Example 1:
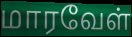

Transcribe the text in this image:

மாரவேள்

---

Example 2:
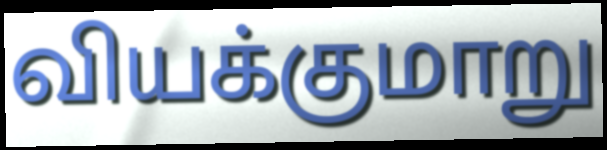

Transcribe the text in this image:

வியக்குமாறு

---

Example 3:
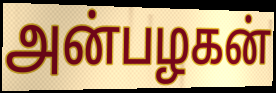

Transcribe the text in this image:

அன்பழகன்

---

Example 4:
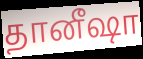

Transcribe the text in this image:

தானீஷா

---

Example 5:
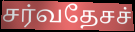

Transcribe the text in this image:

சர்வதேசச்